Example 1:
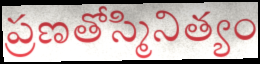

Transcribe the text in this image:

ప్రణతోస్మినిత్యం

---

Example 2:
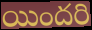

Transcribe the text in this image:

యిందరి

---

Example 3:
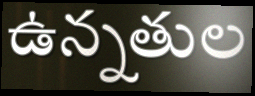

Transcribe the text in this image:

ఉన్నతుల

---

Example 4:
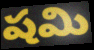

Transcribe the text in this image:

షమి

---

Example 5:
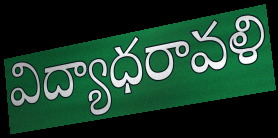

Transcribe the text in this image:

విద్యాధరావళి